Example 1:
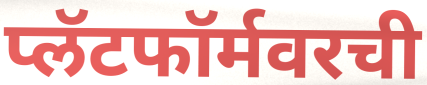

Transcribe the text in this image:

प्लॅटफॉर्मवरची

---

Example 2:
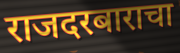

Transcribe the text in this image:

राजदरबाराचा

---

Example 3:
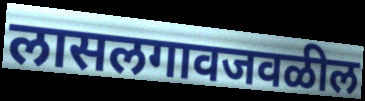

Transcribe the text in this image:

लासलगावजवळील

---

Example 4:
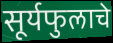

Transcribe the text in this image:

सूर्यफुलाचे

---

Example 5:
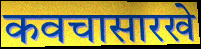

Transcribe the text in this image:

कवचासारखे